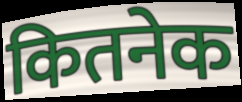
कितनेक